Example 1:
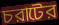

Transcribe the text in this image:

চরাটের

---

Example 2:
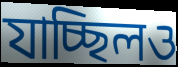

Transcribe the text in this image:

যাচ্ছিলও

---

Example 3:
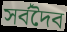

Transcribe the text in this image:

সর্বদৈব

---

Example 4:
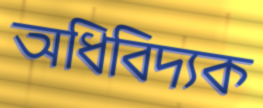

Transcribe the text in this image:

অধিবিদ্যক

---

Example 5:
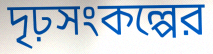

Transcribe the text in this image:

দৃঢ়সংকল্পের